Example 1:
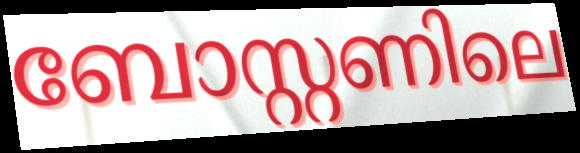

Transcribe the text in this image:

ബോസ്റ്റണിലെ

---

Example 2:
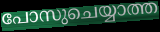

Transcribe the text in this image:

പോസുചെയ്യാത്ത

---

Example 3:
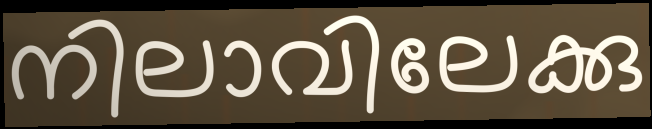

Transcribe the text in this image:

നിലാവിലേക്കു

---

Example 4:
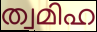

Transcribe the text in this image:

ത്വമിഹ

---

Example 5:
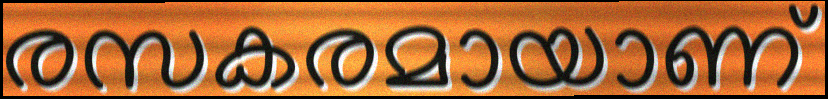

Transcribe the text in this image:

രസകരമായാണ്